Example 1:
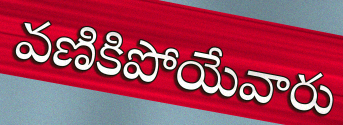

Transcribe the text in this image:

వణికిపోయేవారు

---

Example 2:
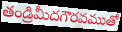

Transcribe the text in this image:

తండ్రిమీదగౌరవముతో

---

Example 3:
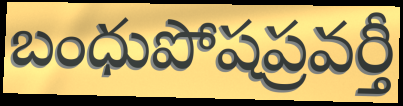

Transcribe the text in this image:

బంధుపోషప్రవర్తీ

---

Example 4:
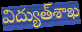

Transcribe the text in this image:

విద్యుత్‌శాఖ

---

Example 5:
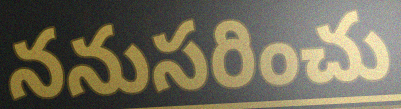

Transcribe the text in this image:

ననుసరించు